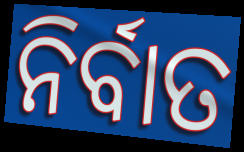
ନିର୍ବାତ